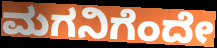
ಮಗನಿಗೆಂದೇ